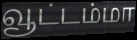
வூட்டம்மா